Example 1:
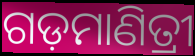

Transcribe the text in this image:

ଗଡ଼ମାଣିତ୍ରୀ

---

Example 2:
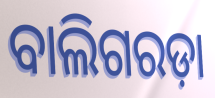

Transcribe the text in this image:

ବାଲିଗରଡ଼ା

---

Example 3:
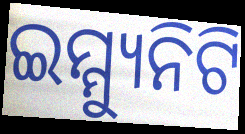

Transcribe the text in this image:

ଇମ୍ମ୍ୟୁନିଟି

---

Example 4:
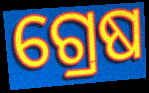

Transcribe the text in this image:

ଗ୍ରେଷ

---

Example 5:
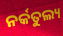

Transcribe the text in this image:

ନର୍କତୁଲ୍ୟ